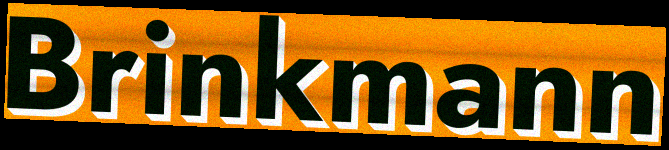
Brinkmann